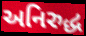
અનિરુદ્ધ